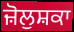
ਜ਼ੋਲੁਸ਼ਕਾ